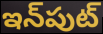
ఇన్‌పుట్